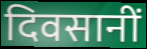
दिवसानीं